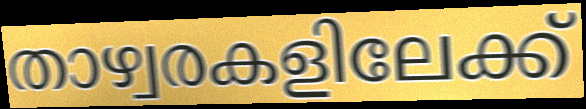
താഴ്വരകളിലേക്ക്